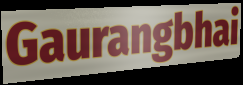
Gaurangbhai